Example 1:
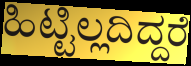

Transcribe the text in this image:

ಹಿಟ್ಟಿಲ್ಲದಿದ್ದರೆ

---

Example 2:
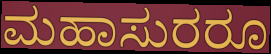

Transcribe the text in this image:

ಮಹಾಸುರರೂ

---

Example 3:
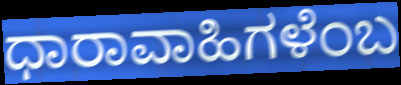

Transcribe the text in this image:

ಧಾರಾವಾಹಿಗಳೆಂಬ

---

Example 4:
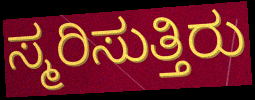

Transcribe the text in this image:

ಸ್ಮರಿಸುತ್ತಿರು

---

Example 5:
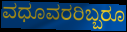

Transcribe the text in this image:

ವಧೂವರರಿಬ್ಬರೂ